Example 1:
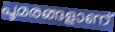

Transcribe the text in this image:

പൂമരങ്ങളാണ്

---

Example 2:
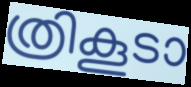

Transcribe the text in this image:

ത്രികൂടാ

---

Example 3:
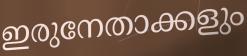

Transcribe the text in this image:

ഇരുനേതാക്കളും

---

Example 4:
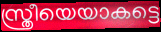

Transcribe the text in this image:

സ്ത്രീയെയാകട്ടെ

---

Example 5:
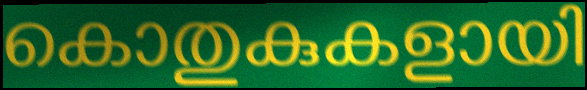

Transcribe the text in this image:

കൊതുകുകളായി